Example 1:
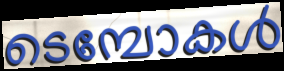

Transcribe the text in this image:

ടെമ്പോകൾ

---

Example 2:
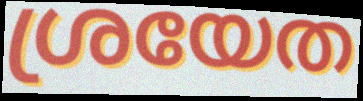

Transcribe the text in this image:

ശ്രയേത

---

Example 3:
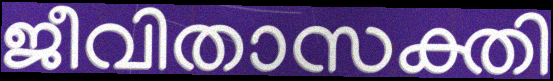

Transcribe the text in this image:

ജീവിതാസക്തി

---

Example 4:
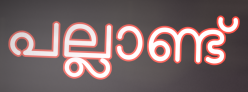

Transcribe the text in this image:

പല്ലാണ്ട്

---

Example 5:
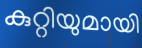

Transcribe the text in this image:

കുറ്റിയുമായി